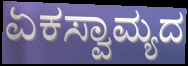
ಏಕಸ್ವಾಮ್ಯದ